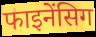
फाइनेंसिग